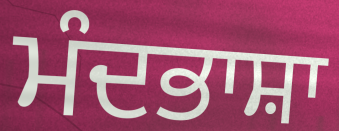
ਮੰਦਭਾਸ਼ਾ